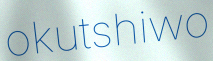
okutshiwo